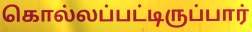
கொல்லப்பட்டிருப்பார்